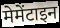
मेमेंटाइन